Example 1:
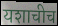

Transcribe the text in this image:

यशाचीच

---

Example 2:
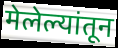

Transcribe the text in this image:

मेलेल्यांतून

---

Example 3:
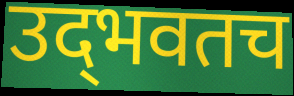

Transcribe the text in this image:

उद्‌भवतच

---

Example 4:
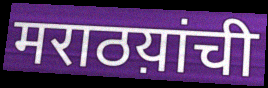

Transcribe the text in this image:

मराठय़ांची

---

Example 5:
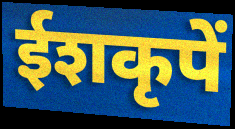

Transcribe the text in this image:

ईशकृपें